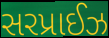
સરપ્રાઈઝ